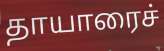
தாயாரைச்